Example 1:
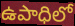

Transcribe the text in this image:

ఉపాధిలో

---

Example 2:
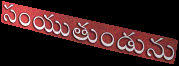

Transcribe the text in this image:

సంయుతుండును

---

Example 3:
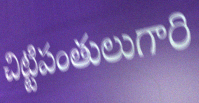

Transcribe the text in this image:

చిట్టిపంతులుగారి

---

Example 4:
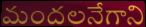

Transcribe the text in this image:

మందలనేగాని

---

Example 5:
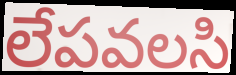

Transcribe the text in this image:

లేపవలసి